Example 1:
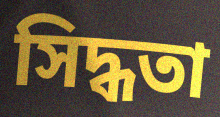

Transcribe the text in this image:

সিদ্ধতা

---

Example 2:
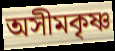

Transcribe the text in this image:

অসীমকৃষ্ণ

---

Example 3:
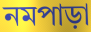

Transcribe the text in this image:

নমপাড়া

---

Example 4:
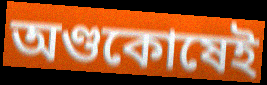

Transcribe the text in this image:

অণ্ডকোষেই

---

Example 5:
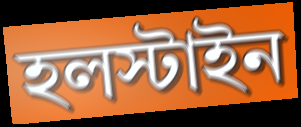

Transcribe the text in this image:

হলস্টাইন